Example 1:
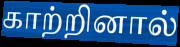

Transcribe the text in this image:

காற்றினால்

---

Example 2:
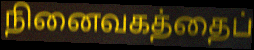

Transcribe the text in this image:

நினைவகத்தைப்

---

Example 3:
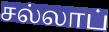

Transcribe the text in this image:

சல்லாப்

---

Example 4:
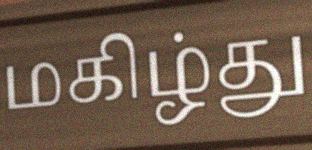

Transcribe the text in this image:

மகிழ்து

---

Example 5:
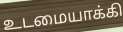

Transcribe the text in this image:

உடமையாக்கி